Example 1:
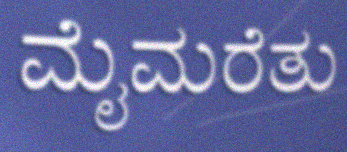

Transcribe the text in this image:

ಮೈಮರೆತು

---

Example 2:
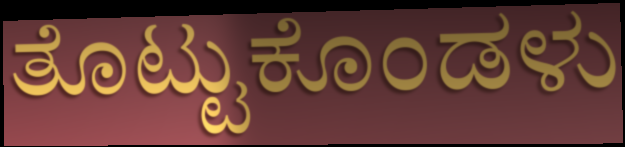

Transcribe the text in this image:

ತೊಟ್ಟುಕೊಂಡಳು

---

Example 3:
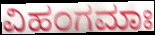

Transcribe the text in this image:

ವಿಹಂಗಮಾಃ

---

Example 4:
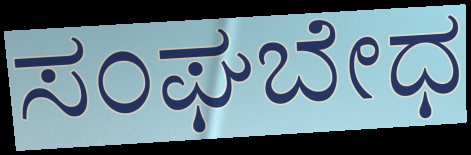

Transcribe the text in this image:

ಸಂಘಬೇಧ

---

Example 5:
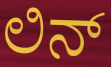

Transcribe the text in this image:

ಲಿನ್